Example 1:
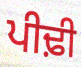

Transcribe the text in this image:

ਪੀਢ਼ੀ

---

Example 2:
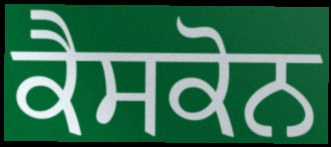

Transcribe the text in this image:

ਕੈਸਕੋਨ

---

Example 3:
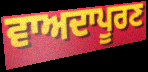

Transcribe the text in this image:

ਵਾਅਦਾਪੂਰਣ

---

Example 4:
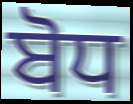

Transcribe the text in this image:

ਬੋਧ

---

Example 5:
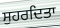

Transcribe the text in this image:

ਸੁਹਰਦਿਤਾ